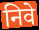
निवे